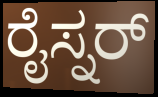
ರೈಸ್ನರ್